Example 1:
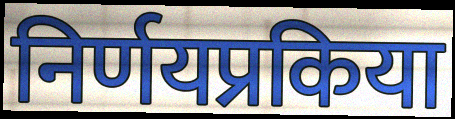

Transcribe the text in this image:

निर्णयप्रकिया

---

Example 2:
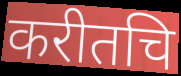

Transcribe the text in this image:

करीतचि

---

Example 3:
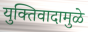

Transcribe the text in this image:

युक्तिवादामुळे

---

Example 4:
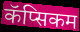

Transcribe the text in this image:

कॅप्सिकम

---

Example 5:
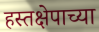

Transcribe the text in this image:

हस्तक्षेपाच्या